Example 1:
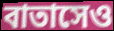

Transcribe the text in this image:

বাতাসেও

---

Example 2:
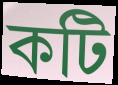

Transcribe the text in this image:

কটি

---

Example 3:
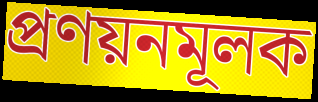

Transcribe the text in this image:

প্রণয়নমূলক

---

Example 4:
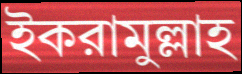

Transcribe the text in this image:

ইকরামুল্লাহ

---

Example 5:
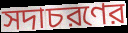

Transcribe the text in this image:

সদাচরণের